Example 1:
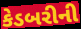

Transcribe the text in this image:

કેડબરીની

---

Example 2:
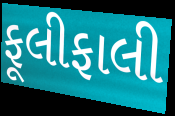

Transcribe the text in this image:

ફૂલીફાલી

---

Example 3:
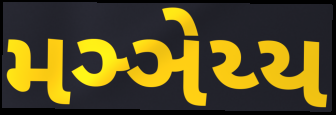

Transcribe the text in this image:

મઞ્ઞેય્ય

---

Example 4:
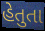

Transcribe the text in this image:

હેતુતા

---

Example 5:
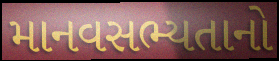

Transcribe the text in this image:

માનવસભ્યતાનો